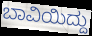
ಬಾವಿಯಿದ್ದು